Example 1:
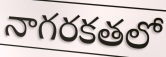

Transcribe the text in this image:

నాగరకతలో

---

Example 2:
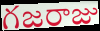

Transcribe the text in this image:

గజరాజు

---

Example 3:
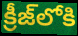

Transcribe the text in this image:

క్రీజ్‌లోకి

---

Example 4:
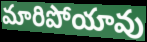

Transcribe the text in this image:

మారిపోయావు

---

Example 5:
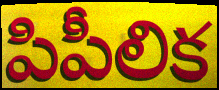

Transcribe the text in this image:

పిపీలిక